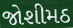
જોશીમઠ